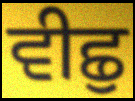
ਵੀਛੁ